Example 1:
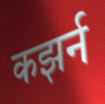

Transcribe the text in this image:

कझर्न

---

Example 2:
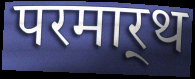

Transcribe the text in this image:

परमार्थ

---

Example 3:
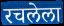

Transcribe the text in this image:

रचलेला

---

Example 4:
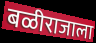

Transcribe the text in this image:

बळीराजाला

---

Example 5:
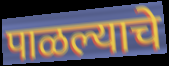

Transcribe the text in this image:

पाळल्याचे